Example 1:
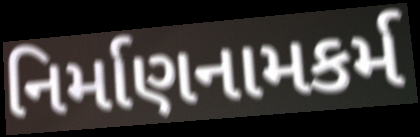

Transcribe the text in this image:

નિર્માણનામકર્મ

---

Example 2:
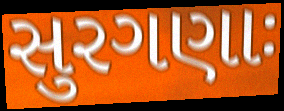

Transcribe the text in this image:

સુરગણાઃ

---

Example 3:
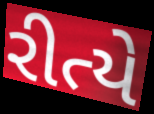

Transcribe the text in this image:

રીત્યે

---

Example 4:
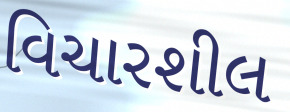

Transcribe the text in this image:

વિચારશીલ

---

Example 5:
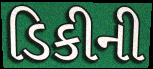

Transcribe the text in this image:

ડિકીની